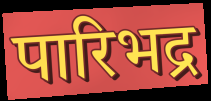
पारिभद्र